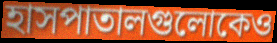
হাসপাতালগুলোকেও